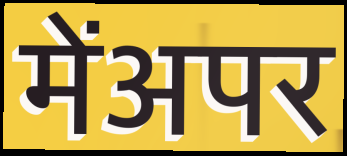
मेंअपर